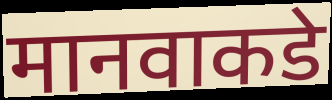
मानवाकडे